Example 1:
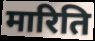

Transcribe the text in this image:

मारिति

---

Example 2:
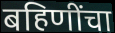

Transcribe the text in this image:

बहिणींचा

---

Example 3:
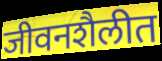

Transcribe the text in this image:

जीवनशैलीत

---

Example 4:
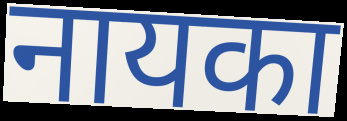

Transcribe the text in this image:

नायका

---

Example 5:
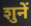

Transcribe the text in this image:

शुनें